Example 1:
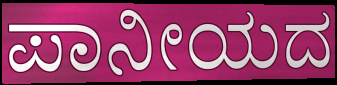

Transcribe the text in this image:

ಪಾನೀಯದ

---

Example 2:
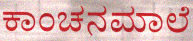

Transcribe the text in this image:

ಕಾಂಚನಮಾಲೆ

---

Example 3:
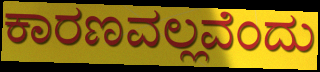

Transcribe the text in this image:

ಕಾರಣವಲ್ಲವೆಂದು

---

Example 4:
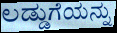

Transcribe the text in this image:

ಲಡ್ಡುಗೆಯನ್ನು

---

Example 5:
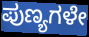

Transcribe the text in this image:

ಪುಣ್ಯಗಳೇ